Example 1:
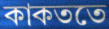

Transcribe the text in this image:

কাকততে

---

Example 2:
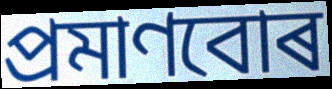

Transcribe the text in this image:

প্ৰমাণবোৰ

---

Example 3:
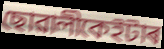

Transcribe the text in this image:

ছোৱালীকেইটাৰ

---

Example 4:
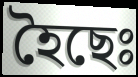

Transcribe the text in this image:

হৈছেঃ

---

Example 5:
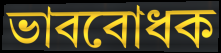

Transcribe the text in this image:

ভাববোধক